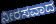
ನೀರಸವಾದ